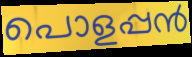
പൊളപ്പൻ